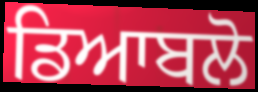
ਡਿਆਬਲੋ